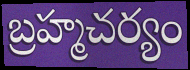
బ్రహ్మచర్యం